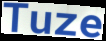
Tuze